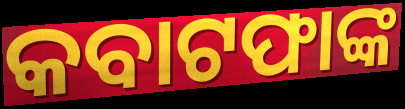
କବାଟଫାଙ୍କ